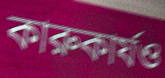
কারুকার্যও